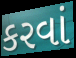
કરવાં